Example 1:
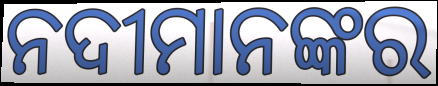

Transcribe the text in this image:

ନଦୀମାନଙ୍କର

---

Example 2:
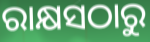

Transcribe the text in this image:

ରାକ୍ଷସଠାରୁ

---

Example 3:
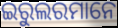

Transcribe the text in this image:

ଇରୁଲରମାନେ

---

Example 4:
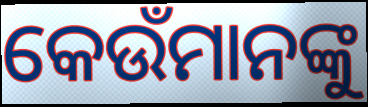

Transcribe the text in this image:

କେଉଁମାନଙ୍କୁ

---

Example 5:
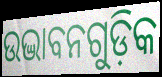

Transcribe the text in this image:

ଉଦ୍ଭାବନଗୁଡ଼ିକ